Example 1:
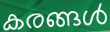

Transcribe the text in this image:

കരങ്ങൾ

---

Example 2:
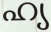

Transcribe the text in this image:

ഹ്യ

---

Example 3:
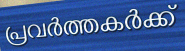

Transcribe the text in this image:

പ്രവർത്തകർക്ക്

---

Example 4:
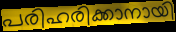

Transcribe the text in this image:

പരിഹരിക്കാനായി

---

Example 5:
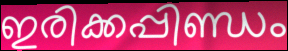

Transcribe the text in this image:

ഇരിക്കപ്പിണ്ഡം